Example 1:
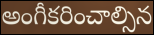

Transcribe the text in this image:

అంగీకరించాల్సిన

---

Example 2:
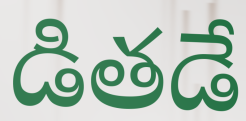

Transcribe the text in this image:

డితడే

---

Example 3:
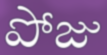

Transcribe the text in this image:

పోజు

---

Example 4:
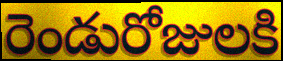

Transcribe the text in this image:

రెండురోజులకి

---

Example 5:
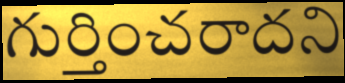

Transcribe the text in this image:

గుర్తించరాదని